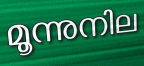
മൂന്നുനില